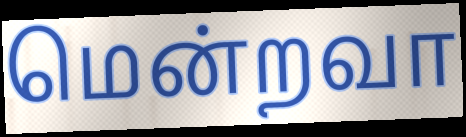
மென்றவா